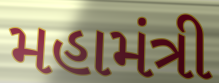
મહામંત્રી